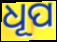
ଧୂପ